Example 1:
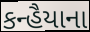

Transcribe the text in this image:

કન્હૈયાના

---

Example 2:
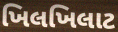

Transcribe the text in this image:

ખિલખિલાટ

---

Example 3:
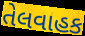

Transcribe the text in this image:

તેલવાહક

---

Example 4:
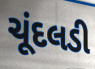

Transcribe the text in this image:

ચૂંદલડી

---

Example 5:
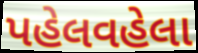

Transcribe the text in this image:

પહેલવહેલા